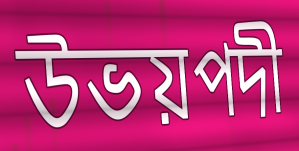
উভয়পদী